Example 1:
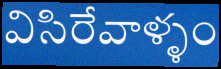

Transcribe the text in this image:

విసిరేవాళ్ళం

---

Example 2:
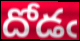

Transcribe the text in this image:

దోడఁ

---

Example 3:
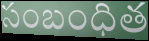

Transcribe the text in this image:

సంబంధిత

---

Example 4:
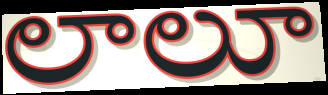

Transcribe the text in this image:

లాలూ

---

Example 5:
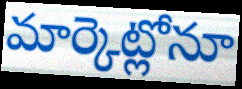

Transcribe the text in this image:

మార్కెట్లోనూ